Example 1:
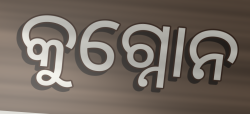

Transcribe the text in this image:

କୁଗ୍ନୋନ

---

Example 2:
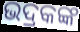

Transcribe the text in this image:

ଭଦ୍ରକଙ୍କ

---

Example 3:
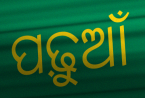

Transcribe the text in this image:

ପଢ଼ୁଆଁ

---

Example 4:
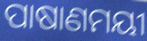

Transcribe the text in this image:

ପାଷାଣମୟୀ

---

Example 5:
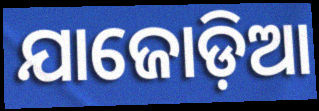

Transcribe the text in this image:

ଯାଜୋଡ଼ିଆ